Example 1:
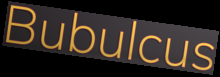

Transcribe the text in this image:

Bubulcus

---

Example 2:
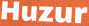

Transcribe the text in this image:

Huzur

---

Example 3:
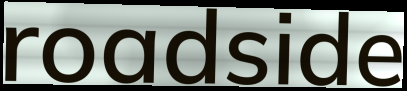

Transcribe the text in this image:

roadside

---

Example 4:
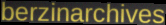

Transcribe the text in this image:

berzinarchives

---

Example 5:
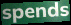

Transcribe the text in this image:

spends